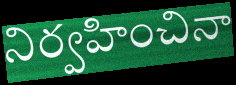
నిర్వహించినా